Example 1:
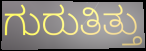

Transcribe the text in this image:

ಗುರುತಿತ್ತು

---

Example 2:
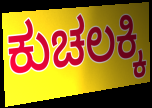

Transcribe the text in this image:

ಕುಚಲಕ್ಕಿ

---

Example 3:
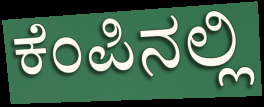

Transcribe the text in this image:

ಕೆಂಪಿನಲ್ಲಿ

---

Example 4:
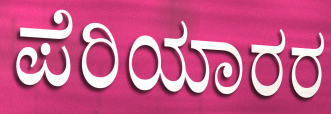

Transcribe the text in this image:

ಪೆರಿಯಾರರ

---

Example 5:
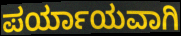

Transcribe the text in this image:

ಪರ್ಯಾಯವಾಗಿ